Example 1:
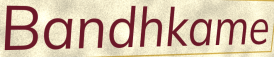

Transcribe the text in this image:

Bandhkame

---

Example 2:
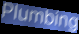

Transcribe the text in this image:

Plumbing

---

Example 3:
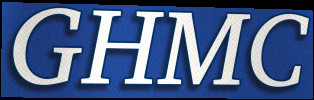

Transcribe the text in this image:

GHMC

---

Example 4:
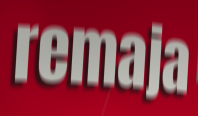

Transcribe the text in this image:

remaja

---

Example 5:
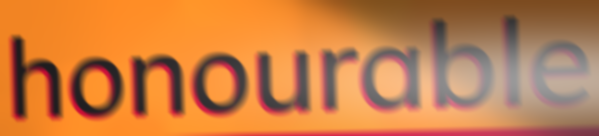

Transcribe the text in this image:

honourable